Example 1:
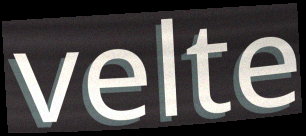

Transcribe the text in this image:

velte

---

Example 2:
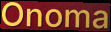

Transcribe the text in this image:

Onoma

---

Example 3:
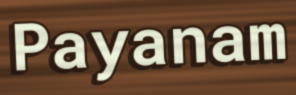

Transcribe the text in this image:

Payanam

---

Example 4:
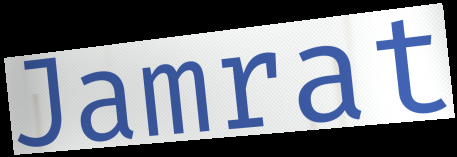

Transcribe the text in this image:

Jamrat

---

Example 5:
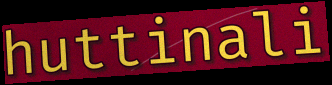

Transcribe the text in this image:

huttinali